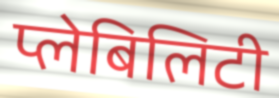
प्लेबिलिटी